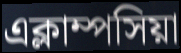
এক্লাম্পসিয়া